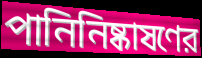
পানিনিষ্কাষণের